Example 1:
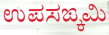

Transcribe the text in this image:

ಉಪಸಙ್ಕಮಿ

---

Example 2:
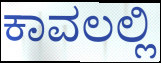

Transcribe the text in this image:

ಕಾವಲಲ್ಲಿ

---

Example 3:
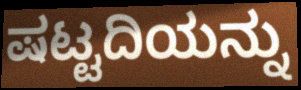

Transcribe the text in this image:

ಷಟ್ಟದಿಯನ್ನು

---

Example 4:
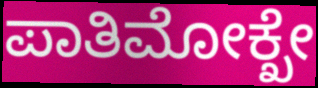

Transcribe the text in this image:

ಪಾತಿಮೋಕ್ಖೇ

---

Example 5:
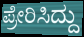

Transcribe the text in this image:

ಪ್ರೇರಿಸಿದ್ದು